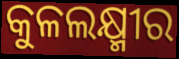
କୁଳଲକ୍ଷ୍ମୀର